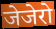
जेजेरो